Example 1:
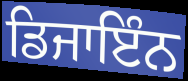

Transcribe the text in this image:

ਡਿਜਾਇੰਨ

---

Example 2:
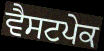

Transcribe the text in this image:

ਵੈਸਟਪੇਕ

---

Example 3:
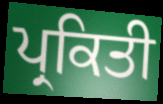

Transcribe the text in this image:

ਪ੍ਰਕਿਤੀ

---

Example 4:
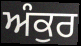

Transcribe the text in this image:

ਅੰਕੁਰ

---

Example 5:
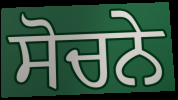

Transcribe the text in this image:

ਸੋਚਨੇ